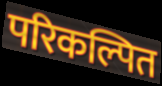
परिकल्पित